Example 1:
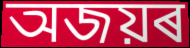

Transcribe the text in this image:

অজয়ৰ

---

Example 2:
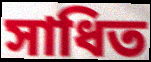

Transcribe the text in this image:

সাধিত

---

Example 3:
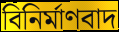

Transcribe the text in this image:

বিনিৰ্মাণবাদ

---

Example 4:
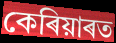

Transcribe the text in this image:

কেৰিয়াৰত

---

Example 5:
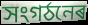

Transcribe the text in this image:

সংগঠনেৰ